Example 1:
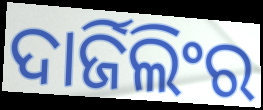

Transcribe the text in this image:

ଦାର୍ଜିଲିଂର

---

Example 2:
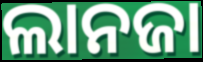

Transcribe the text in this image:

ଲାନଜା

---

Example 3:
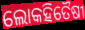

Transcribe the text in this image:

ଲୋକହିତୈଷୀ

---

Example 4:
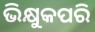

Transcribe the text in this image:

ଭିକ୍ଷୁକପରି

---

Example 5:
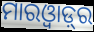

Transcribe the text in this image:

ମାରଓ୍ୱାଡ଼୍‌ର